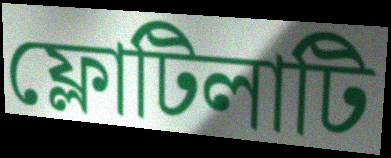
ফ্লোটিলাটি